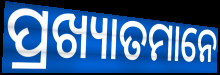
ପ୍ରଖ୍ୟାତମାନେ